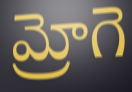
మ్రోగె